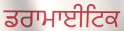
ਡਰਾਮਾਈਟਿਕ